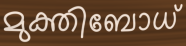
മുക്തിബോധ്